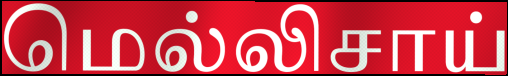
மெல்லிசாய்